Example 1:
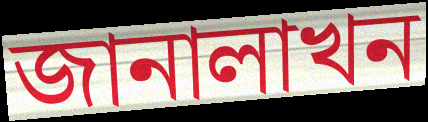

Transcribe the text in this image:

জানালাখন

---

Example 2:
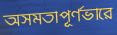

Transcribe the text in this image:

অসমতাপূৰ্ণভাৱে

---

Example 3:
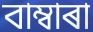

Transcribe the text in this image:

বাম্বাৰা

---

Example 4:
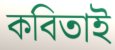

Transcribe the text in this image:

কবিতাই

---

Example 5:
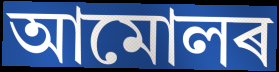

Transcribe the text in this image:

আমোলৰ